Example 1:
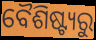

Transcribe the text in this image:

ବୈଶିଷ୍ଟ୍ୟରୁ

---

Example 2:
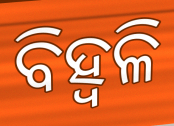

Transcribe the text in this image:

ବିହ୍ୱଳି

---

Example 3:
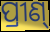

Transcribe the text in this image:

ପ୍ରୀଣ୍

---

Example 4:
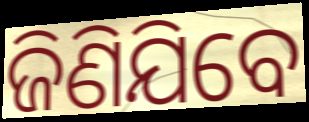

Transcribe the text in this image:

ଜିଣିଯିବେ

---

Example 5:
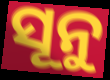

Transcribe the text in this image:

ସୂନୁ